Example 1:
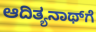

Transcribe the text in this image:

ಆದಿತ್ಯನಾಥ್‌ಗೆ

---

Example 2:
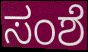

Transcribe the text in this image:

ಸಂಶೆ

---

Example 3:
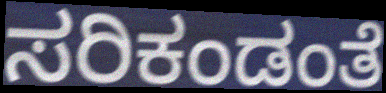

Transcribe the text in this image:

ಸರಿಕಂಡಂತೆ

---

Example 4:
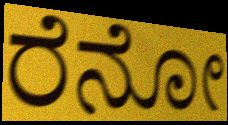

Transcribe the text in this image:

ರೆನೋ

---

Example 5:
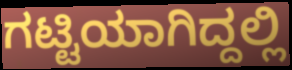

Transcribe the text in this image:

ಗಟ್ಟಿಯಾಗಿದ್ದಲ್ಲಿ